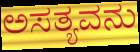
ಅಸತ್ಯವನು